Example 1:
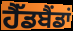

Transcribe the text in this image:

ਹੈੱਡਬੈਂਡਾਂ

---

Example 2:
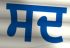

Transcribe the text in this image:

ਸਦ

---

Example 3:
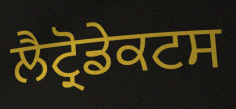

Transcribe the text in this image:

ਲੈਟ੍ਰੋਡੇਕਟਸ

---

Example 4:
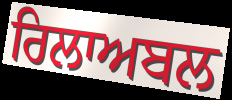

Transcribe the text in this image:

ਰਿਲਾਅਬਲ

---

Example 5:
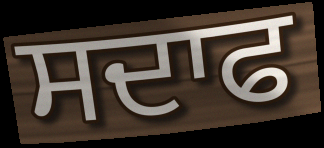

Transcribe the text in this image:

ਸਦਾਫ